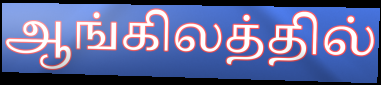
ஆங்கிலத்தில்